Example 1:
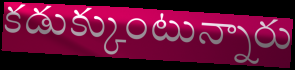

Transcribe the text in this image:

కడుక్కుంటున్నారు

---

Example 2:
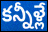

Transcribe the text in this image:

కన్నీళ్లే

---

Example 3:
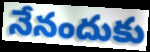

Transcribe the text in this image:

నేనందుకు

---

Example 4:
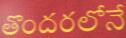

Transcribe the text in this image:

తొందరలోనే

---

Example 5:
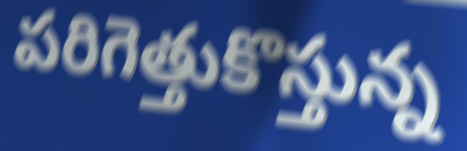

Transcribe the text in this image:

పరిగెత్తుకొస్తున్న